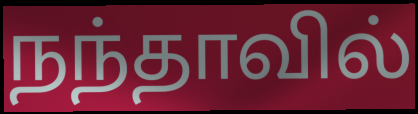
நந்தாவில்